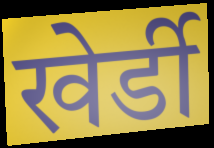
खेर्डी